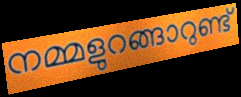
നമ്മളുറങ്ങാറുണ്ട്